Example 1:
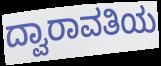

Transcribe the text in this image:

ದ್ವಾರಾವತಿಯ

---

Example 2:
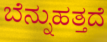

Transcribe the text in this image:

ಬೆನ್ನುಹತ್ತದೆ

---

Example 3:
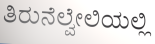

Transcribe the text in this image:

ತಿರುನೆಲ್ವೇಲಿಯಲ್ಲಿ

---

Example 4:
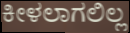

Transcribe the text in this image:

ಕೀಳಲಾಗಲಿಲ್ಲ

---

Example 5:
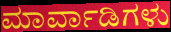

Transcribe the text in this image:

ಮಾರ್ವಾಡಿಗಳು